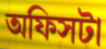
অফিসটা